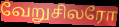
வேறுசிலரோ